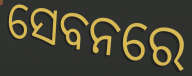
ସେବନରେ